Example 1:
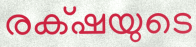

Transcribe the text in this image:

രക്‌ഷയുടെ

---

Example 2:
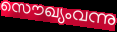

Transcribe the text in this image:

സൌഖ്യംവന്നു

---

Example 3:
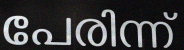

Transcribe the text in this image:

പേരിന്ന്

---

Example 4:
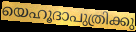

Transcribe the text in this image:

യെഹൂദാപുത്രിക്കു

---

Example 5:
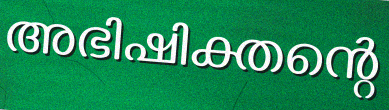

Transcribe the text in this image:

അഭിഷിക്തന്റെ